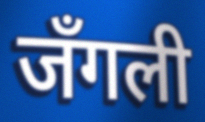
जँगली